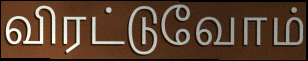
விரட்டுவோம்